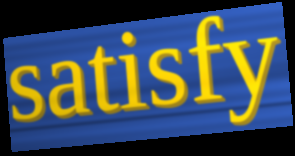
satisfy